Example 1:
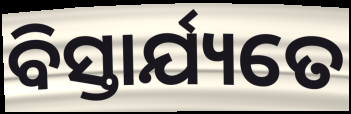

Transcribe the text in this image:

ବିସ୍ତାର୍ଯ୍ୟତେ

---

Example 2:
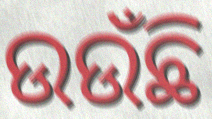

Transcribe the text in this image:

ଉଉଁଛି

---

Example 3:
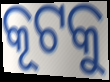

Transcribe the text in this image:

କୂଟକୁ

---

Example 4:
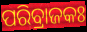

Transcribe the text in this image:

ପରିବ୍ରାଜକଃ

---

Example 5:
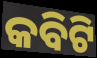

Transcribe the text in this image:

କବିଟି